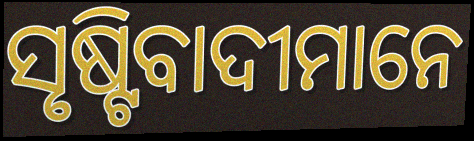
ସୃଷ୍ଟିବାଦୀମାନେ